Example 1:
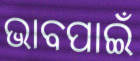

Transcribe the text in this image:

ଭାବପାଇଁ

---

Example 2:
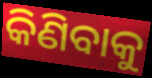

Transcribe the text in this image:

କିଣିବାକୁ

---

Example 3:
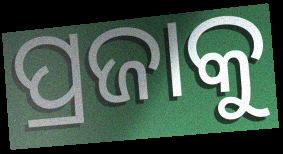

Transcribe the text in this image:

ପ୍ରଜାକୁ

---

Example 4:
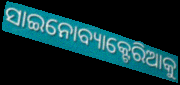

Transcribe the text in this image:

ସାଇନୋବ୍ୟାକ୍ଟେରିଆକୁ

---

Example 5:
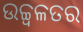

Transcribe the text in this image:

ଉଚ୍ଚ୍ୱଳତର